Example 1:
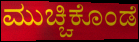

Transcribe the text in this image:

ಮುಚ್ಚಿಕೊಂಡೆ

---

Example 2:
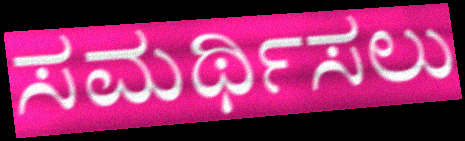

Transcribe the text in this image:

ಸಮರ್ಥಿಸಲು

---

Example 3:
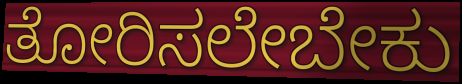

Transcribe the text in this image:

ತೋರಿಸಲೇಬೇಕು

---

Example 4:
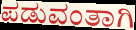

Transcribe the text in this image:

ಪಡುವಂತಾಗಿ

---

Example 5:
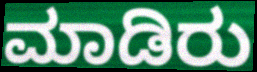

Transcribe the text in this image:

ಮಾಡಿರು